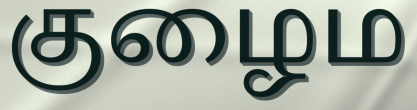
குழைம